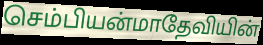
செம்பியன்மாதேவியின்